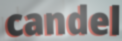
candel